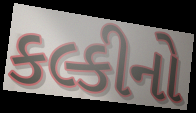
કલ્કીનો